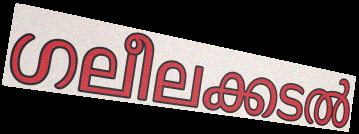
ഗലീലക്കടൽ